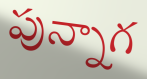
పున్నాగ